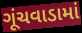
ગૂંચવાડામાં